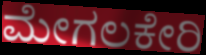
ಮೇಗಲಕೇರಿ